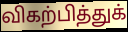
விகற்பித்துக்